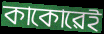
কাকোৱেই